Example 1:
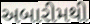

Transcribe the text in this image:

અબારીમથી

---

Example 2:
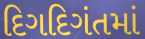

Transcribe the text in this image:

દિગદિગંતમાં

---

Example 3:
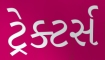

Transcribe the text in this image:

ટ્રેક્ટર્સ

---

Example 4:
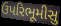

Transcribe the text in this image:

ઉપરિભૂમીસુ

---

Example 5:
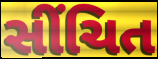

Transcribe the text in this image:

સીંચિત